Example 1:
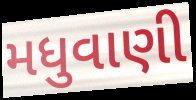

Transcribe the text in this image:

મધુવાણી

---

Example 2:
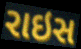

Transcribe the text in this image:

રાઇસ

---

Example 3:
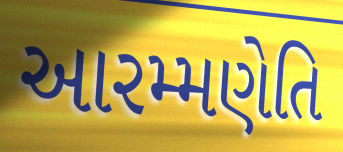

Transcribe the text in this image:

આરમ્મણેતિ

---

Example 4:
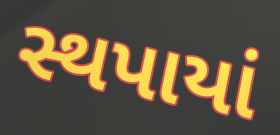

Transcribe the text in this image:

સ્થપાયાં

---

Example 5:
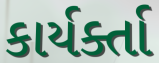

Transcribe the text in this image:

કાર્યર્ક્તા